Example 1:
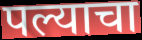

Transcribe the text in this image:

पल्याचा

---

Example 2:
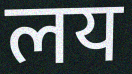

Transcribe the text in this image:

लय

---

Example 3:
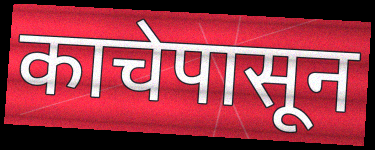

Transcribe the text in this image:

काचेपासून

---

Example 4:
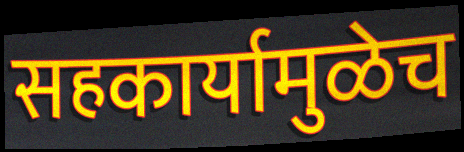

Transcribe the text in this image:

सहकार्यामुळेच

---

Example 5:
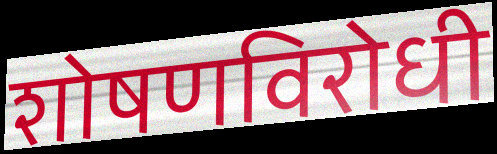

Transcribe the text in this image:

शोषणविरोधी